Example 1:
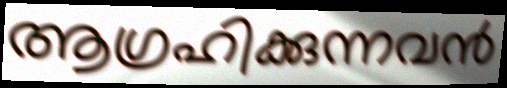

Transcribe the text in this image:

ആഗ്രഹിക്കുന്നവൻ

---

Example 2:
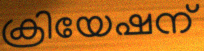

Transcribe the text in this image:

ക്രിയേഷന്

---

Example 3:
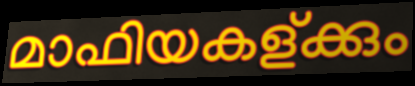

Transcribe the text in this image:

മാഫിയകള്ക്കും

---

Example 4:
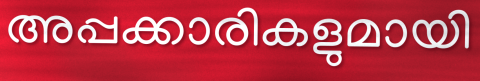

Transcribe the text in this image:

അപ്പക്കാരികളുമായി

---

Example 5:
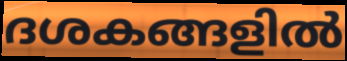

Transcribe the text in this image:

ദശകങ്ങളിൽ